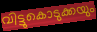
വിട്ടുകൊടുക്കയും